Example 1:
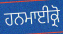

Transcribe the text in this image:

ਹਨਮਾਈਕ੍ਰੋ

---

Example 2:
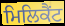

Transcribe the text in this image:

ਮਿਲਿਕੈਂਟ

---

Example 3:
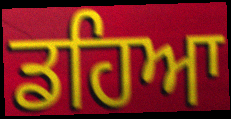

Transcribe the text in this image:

ਡਹਿਆ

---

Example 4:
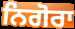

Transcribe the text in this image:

ਨਿਗੋਰਾ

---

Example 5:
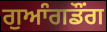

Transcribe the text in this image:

ਗੁਆੰਗਡੌਂਗ